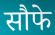
सौफे